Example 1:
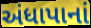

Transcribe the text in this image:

અંધાપાનાં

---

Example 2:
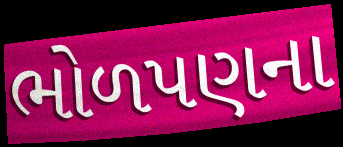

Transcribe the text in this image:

ભોળપણના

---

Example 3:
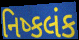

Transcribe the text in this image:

નિષ્કલંક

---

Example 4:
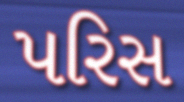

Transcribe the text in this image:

પરિસ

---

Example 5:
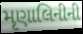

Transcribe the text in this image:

મૃણાલિનીની